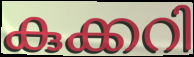
കുക്കറി